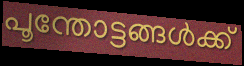
പൂന്തോട്ടങ്ങൾക്ക്